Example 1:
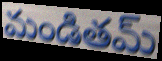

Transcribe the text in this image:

మండితమ్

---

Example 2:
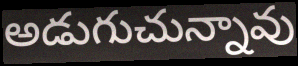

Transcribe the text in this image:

అడుగుచున్నావు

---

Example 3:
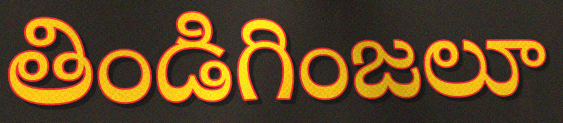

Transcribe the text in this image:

తిండిగింజలూ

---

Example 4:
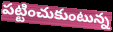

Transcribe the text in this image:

పట్టించుకుంటున్న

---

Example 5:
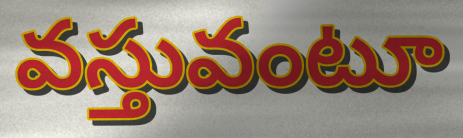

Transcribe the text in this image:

వస్తువంటూ